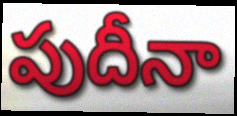
పుదీనా